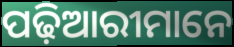
ପଢ଼ିଆରୀମାନେ